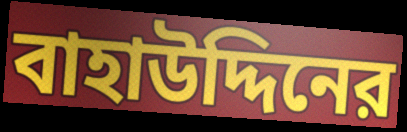
বাহাউদ্দিনের